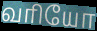
வரியோ